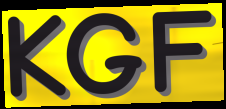
KGF